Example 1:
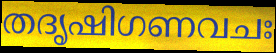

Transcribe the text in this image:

തദൃഷിഗണവചഃ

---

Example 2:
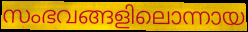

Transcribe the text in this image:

സംഭവങ്ങളിലൊന്നായ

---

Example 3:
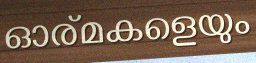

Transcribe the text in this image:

ഓര്മകളെയും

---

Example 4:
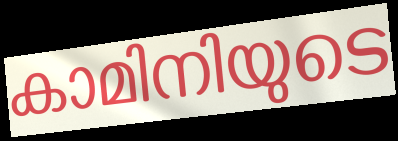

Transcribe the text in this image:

കാമിനിയുടെ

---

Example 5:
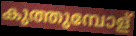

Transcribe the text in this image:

കുത്തുമ്പോള്